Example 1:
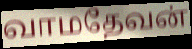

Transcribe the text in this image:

வாமதேவன்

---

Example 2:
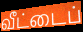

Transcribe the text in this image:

வீட்டைப்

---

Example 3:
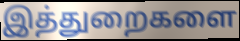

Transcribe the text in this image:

இத்துறைகளை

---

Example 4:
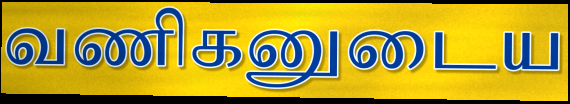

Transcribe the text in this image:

வணிகனுடைய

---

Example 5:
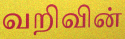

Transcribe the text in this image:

வறிவின்